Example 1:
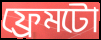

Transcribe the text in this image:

ফ্ৰেমটো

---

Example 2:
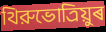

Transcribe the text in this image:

থিৰুভোত্ৰিয়ুৰ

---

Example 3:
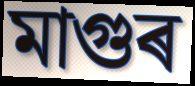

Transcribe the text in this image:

মাগুৰ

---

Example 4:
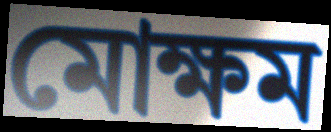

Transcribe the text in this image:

মোক্ষম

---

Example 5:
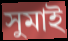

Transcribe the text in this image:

সুমাই